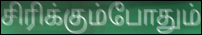
சிரிக்கும்போதும்